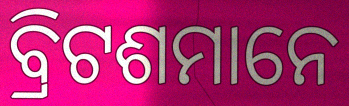
ବ୍ରିଟଶମାନେ